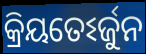
କ୍ରିୟତେଽର୍ଜୁନ